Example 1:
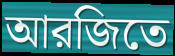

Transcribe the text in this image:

আরজিতে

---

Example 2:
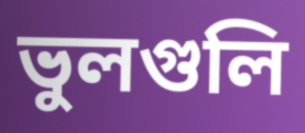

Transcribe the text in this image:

ভুলগুলি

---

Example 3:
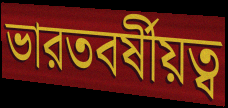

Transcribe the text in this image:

ভারতবর্ষীয়ত্ব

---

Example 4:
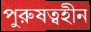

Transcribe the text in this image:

পুরুষত্বহীন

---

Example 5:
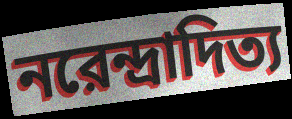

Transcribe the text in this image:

নরেন্দ্রাদিত্য